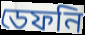
ডেফনি